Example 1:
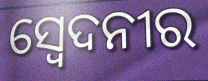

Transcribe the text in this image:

ସ୍ୱେଦନୀର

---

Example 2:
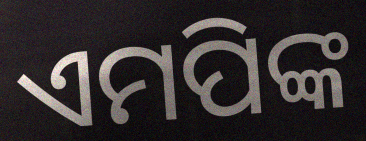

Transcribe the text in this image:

ଏମପିଙ୍କ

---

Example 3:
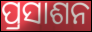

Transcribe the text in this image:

ପ୍ରସାଶନ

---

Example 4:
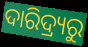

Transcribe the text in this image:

ଦାରିଦ୍ର୍ୟରୁ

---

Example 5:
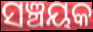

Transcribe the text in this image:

ସଞ୍ଚୟକ